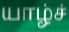
யாழ்ச்